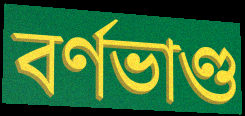
বর্ণভাণ্ড